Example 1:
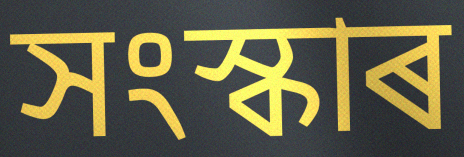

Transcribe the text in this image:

সংস্কাৰ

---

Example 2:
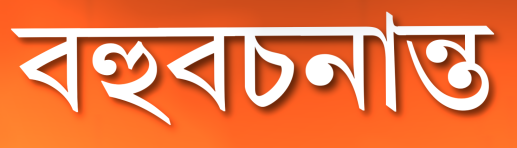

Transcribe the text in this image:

বহুবচনান্ত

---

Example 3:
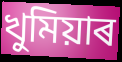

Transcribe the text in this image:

খুমিয়াৰ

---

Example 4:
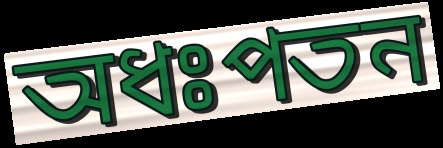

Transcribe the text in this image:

অধঃপতন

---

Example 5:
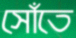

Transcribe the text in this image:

সোঁতে